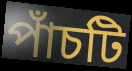
পাঁচটি